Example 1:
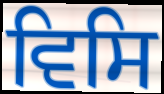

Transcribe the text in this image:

ਵਿਸਿ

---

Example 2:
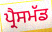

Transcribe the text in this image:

ਪ੍ਰੈਸਮੱਡ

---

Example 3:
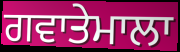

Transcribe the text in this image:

ਗਵਾਤੇਮਾਲਾ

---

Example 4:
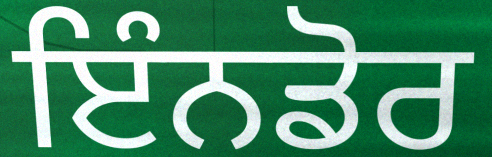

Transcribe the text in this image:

ਇੰਨਡੋਰ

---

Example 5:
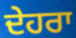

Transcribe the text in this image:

ਦੇਹਰਾ